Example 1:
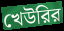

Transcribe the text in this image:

খেউরির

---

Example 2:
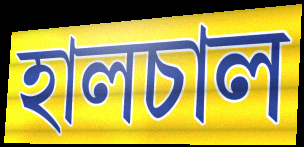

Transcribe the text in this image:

হালচাল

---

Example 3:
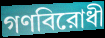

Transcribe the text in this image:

গণবিরোধী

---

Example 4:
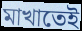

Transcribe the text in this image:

মাখাতেই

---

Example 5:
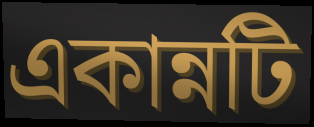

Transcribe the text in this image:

একান্নটি